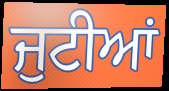
ਜੁਟੀਆਂ